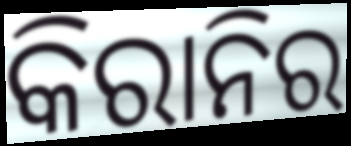
କିରାନିର